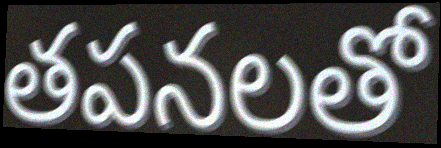
తపనలతో